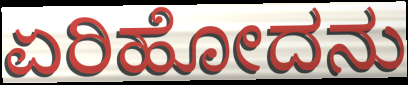
ಏರಿಹೋದನು